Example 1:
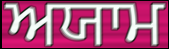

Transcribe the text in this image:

ਅਯਾਮ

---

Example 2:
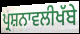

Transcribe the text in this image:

ਪ੍ਰਸ਼ਨਾਵਲੀਖੱਬੇ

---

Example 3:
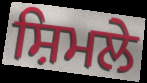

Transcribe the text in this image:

ਸ਼ਿਮਲੇ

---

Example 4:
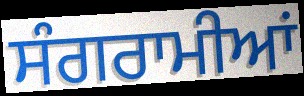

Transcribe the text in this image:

ਸੰਗਰਾਮੀਆਂ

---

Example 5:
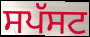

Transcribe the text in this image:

ਸਪੱਸਟ